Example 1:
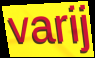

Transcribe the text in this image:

varij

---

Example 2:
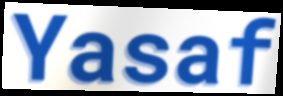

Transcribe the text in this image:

Yasaf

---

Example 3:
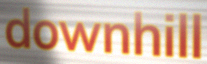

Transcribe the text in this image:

downhill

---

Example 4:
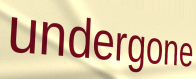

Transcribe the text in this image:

undergone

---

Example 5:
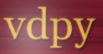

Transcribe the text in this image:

vdpy